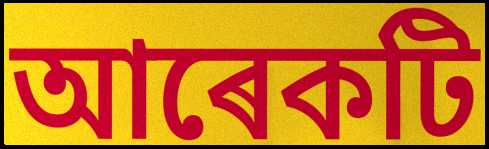
আৰেকটি